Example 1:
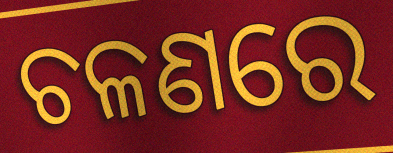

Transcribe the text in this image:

ଚଳଣରେ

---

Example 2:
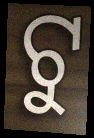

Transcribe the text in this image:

ଟୁ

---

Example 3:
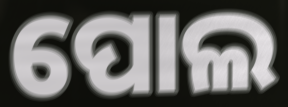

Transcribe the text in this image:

ପୋଲ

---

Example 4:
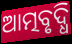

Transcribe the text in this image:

ଆତ୍ମବୃଦ୍ଧି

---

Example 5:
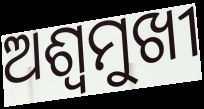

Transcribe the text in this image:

ଅଶ୍ୱମୁଖୀ